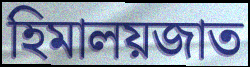
হিমালয়জাত